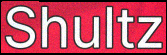
Shultz